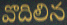
వొదిలిన